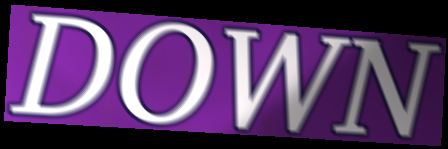
DOWN